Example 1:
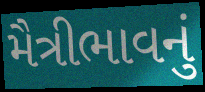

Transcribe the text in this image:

મૈત્રીભાવનું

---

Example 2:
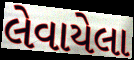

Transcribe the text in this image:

લેવાયેલા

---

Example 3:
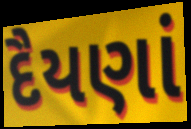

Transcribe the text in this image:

દૈયણાં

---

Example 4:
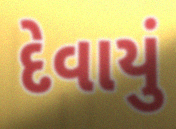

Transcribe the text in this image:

દેવાયું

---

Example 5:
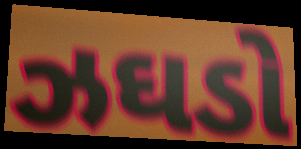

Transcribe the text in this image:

ઝઘડો